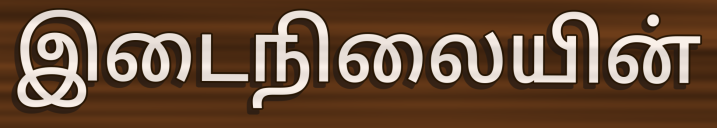
இடைநிலையின்